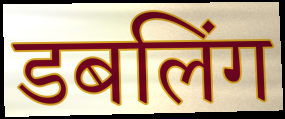
डबलिंग